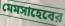
মেমসাহেবের